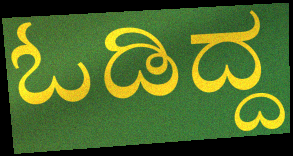
ಓಡಿದ್ದ